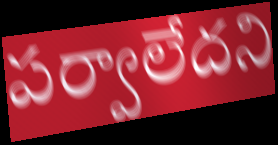
పర్వాలేదని